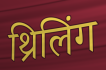
थ्रिलिंग